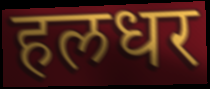
हलधर